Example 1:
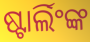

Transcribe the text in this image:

ଷ୍ଟାର୍ଲିଂଙ୍କ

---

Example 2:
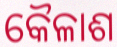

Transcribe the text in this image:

କୈଳାଶ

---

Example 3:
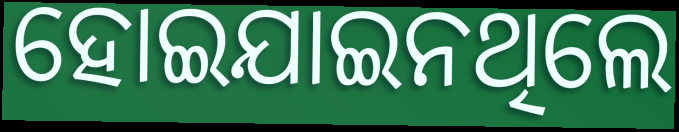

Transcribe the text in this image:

ହୋଇଯାଇନଥିଲେ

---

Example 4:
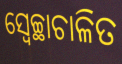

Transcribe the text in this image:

ସ୍ୱେଚ୍ଛାଚାଳିତ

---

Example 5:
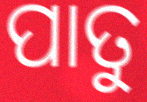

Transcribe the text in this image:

ପାତୁ